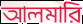
আলমারি